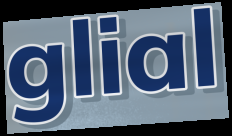
glial